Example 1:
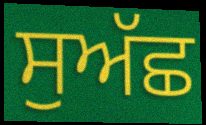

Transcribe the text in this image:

ਸੁਅੱਛ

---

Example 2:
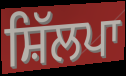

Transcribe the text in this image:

ਸ਼ਿੱਲਪਾ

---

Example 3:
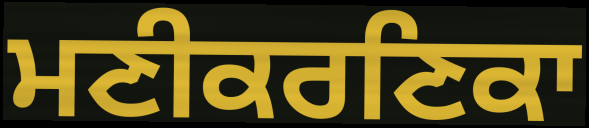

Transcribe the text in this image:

ਮਣੀਕਰਣਿਕਾ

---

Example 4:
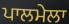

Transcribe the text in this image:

ਪਾਲਮੇਲਾ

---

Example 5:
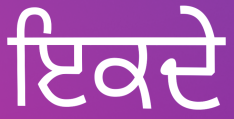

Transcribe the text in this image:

ਇਕਦੇ